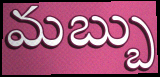
మబ్బు